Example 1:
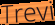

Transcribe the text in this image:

Trevi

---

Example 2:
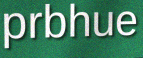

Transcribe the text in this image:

prbhue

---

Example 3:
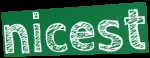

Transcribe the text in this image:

nicest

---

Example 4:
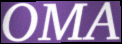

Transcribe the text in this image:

OMA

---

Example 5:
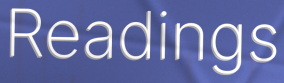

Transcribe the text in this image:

Readings